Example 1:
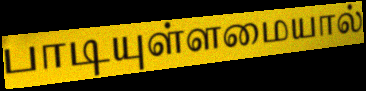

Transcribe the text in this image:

பாடியுள்ளமையால்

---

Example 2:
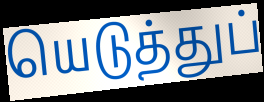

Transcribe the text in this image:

யெடுத்துப்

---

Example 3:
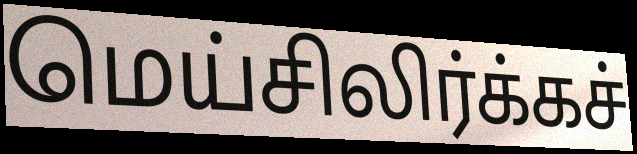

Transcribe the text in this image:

மெய்சிலிர்க்கச்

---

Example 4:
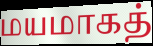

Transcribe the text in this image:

மயமாகத்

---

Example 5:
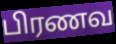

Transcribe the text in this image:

பிரணவ